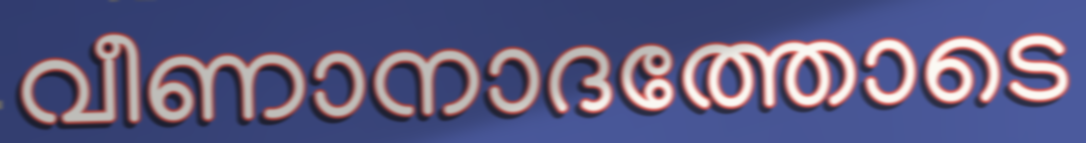
വീണാനാദത്തോടെ